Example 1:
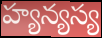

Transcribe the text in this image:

హ్యన్యస్య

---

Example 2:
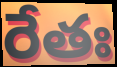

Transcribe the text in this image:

రేతః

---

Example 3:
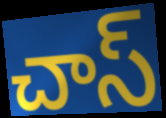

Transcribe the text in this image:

చాస్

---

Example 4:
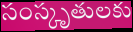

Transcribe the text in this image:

సంస్కృతులకు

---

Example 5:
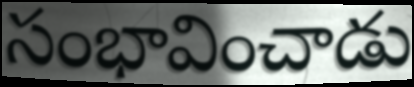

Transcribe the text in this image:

సంభావించాడు